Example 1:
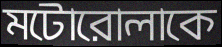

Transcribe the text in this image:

মটোরোলাকে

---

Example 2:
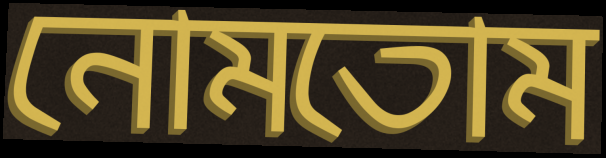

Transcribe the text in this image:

নোমতোম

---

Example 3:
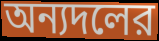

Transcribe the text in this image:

অন্যদলের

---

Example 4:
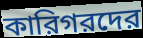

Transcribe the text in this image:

কারিগরদের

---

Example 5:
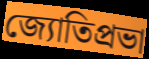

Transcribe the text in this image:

জ্যোতিপ্রভা